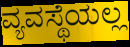
ವ್ಯವಸ್ಥೆಯಲ್ಲ